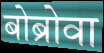
बोब्रोवा